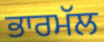
ਭਾਰਮੱਲ